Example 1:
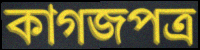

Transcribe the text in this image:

কাগজপত্র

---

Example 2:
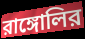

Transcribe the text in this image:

রাঙ্গোলির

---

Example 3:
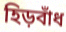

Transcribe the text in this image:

হিড়বাঁধ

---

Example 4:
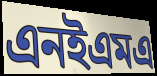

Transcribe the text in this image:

এনইএমএ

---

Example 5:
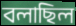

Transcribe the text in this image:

বলাছিল